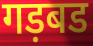
गड़बड